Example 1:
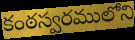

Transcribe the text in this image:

కంఠస్వరములోని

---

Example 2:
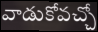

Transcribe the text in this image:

వాడుకోవచ్చో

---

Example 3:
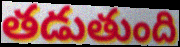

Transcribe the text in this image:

తడుతుంది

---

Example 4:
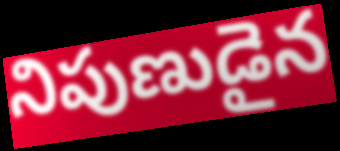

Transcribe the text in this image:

నిపుణుడైన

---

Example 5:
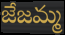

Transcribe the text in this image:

జేజమ్మ